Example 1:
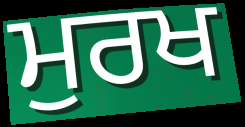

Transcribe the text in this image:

ਮੁਰਖ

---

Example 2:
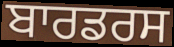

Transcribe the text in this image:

ਬਾਰਡਰਸ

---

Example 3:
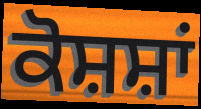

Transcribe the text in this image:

ਕੋਸ਼ਸ਼ਾਂ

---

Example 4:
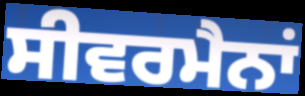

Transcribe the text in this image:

ਸੀਵਰਮੈਨਾਂ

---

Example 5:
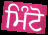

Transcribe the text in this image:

ਮਿੰਟੋ